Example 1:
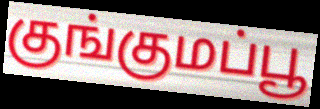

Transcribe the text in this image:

குங்குமப்பூ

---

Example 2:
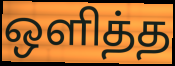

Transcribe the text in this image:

ஒளித்த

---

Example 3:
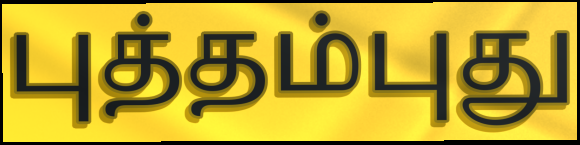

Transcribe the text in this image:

புத்தம்புது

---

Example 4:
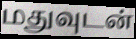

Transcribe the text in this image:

மதுவுடன்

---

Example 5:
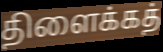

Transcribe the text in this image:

திளைக்கத்